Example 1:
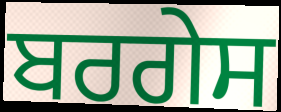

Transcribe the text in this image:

ਬਰਗੇਸ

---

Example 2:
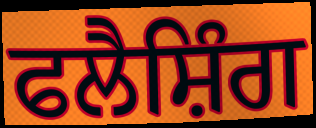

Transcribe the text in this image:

ਫਲੈਸ਼ਿੰਗ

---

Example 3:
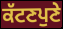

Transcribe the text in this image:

ਕੱਟਣਪੁਣੇ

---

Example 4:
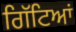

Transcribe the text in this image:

ਗਿੱਟਿਆਂ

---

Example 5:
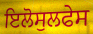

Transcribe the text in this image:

ਇਲੋਸੁਲਫੇਸ